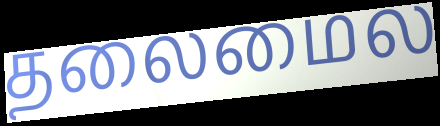
தலைமைல